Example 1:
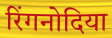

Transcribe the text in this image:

रिंगनोदिया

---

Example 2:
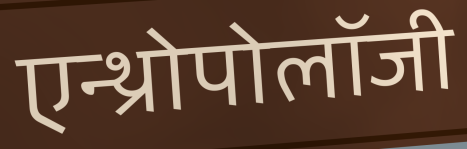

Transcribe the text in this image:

एन्थ्रोपोलॉजी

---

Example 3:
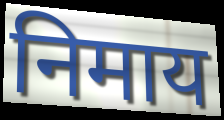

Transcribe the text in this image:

निमाय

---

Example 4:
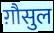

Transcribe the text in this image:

ग़ौसुल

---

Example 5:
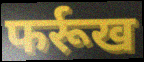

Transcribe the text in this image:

फर्रूख